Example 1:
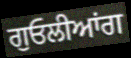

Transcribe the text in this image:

ਗੁਓਲੀਆਂਗ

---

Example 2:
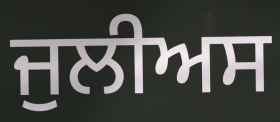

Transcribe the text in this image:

ਜੁਲੀਅਸ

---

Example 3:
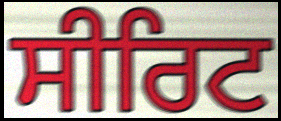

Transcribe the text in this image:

ਸੀਰਿਟ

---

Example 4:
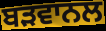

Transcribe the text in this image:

ਬੜਵਾਨਲ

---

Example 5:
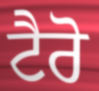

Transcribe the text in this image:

ਟੈਰੋ